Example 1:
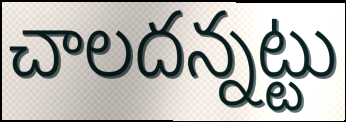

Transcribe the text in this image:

చాలదన్నట్టు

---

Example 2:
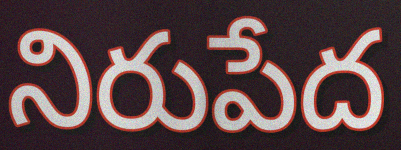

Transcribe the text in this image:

నిరుపేద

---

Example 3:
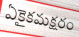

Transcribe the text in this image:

ఏకైకమక్షరం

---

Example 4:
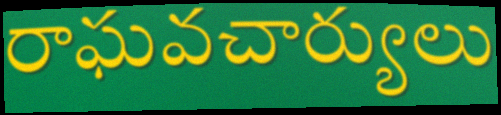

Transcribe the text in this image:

రాఘవచార్యులు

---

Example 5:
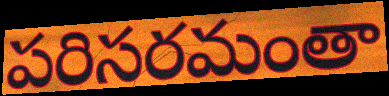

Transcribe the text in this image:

పరిసరమంతా